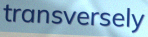
transversely